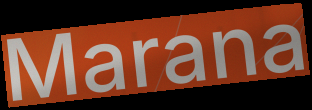
Marana